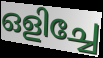
ഒളിച്ചേ